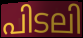
പിടലി